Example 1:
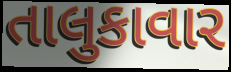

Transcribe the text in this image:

તાલુકાવાર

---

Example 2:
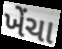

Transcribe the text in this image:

ખેંચા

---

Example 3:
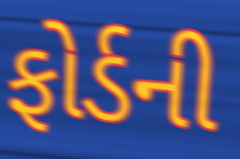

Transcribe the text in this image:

ફોર્ડની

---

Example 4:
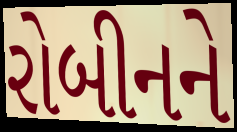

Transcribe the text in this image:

રોબીનને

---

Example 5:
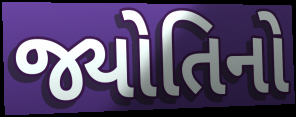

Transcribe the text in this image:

જ્યોતિનો